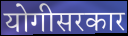
योगीसरकार